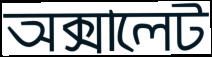
অক্সালেট